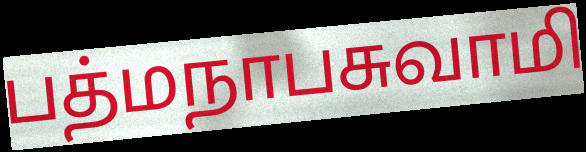
பத்மநாபசுவாமி